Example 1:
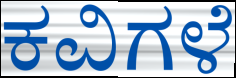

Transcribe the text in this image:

ಕವಿಗಳೆ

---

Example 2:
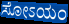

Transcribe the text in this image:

ಸೋಽಯಂ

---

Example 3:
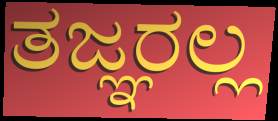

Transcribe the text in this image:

ತಜ್ಞರಲ್ಲ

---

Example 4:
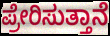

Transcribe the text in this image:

ಪ್ರೇರಿಸುತ್ತಾನೆ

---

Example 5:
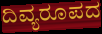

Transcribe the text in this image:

ದಿವ್ಯರೂಪದ